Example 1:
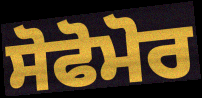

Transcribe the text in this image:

ਸੋਫੋਮੋਰ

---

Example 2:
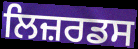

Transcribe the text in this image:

ਲਿਜ਼ਰਡਸ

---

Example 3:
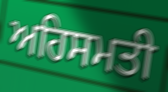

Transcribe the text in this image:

ਅਹਿਸਮਤੀ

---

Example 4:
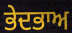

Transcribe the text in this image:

ਭੇਦਭਾਅ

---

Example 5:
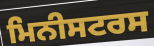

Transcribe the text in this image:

ਮਿਨੀਸਟਰਸ